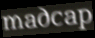
madcap